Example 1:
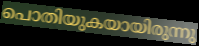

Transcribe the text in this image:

പൊതിയുകയായിരുന്നു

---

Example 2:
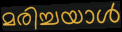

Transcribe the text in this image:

മരിച്ചയാൾ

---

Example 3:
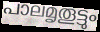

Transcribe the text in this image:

പാലമൃതൂട്ടും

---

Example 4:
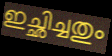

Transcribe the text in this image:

ഇച്ഛിച്ചതും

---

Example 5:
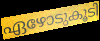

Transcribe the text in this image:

ഏഴോടുകൂടി